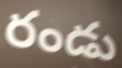
రండు